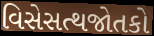
વિસેસત્થજોતકો